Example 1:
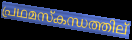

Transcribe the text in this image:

പ്രഥമസ്കന്ധത്തില്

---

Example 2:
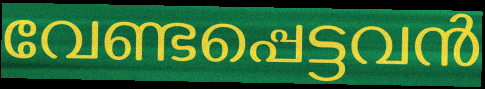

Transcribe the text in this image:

വേണ്ടപ്പെട്ടവൻ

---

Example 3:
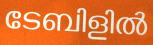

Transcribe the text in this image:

ടേബിളിൽ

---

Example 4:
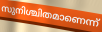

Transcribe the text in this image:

സുനിശ്ചിതമാണെന്ന്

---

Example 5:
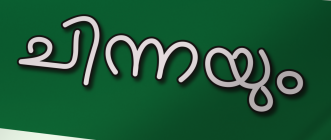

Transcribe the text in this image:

ചിന്നയും